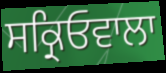
ਸਕ੍ਰਿਓਵਾਲਾ